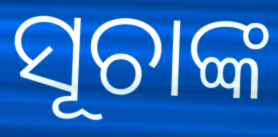
ସୂଚାଙ୍କ